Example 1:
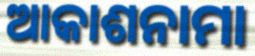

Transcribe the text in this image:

ଆକାଶନାମା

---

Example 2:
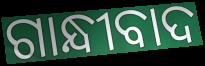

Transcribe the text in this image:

ଗାନ୍ଧୀବାଦ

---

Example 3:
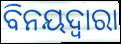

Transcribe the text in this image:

ବିନୟଦ୍ବାରା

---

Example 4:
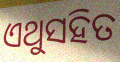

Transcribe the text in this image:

ଏଥୁସହିତ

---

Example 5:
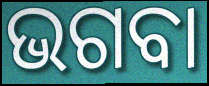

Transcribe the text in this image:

ଭଗବା